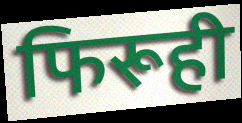
फिरूही